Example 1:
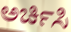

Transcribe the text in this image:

ಅರ್ಚಿಸಿ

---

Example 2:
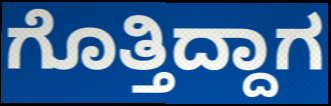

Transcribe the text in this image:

ಗೊತ್ತಿದ್ದಾಗ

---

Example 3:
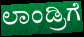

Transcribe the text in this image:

ಲಾಂಡ್ರಿಗೆ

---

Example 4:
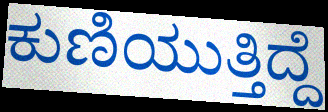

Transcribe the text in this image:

ಕುಣಿಯುತ್ತಿದ್ದೆ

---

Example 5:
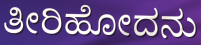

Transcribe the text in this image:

ತೀರಿಹೋದನು